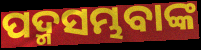
ପଦ୍ମସମ୍ଭବାଙ୍କ